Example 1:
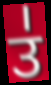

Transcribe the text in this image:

उ॑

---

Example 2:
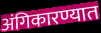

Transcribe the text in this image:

अंगिकारण्यात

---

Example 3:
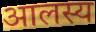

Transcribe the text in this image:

आलस्य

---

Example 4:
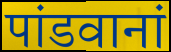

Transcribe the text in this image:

पांडवानां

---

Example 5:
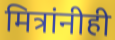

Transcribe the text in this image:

मित्रांनीही